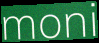
moni